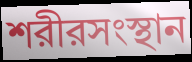
শরীরসংস্থান